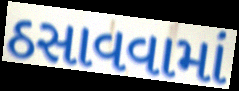
ઠસાવવામાં